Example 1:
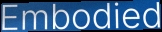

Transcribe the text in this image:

Embodied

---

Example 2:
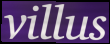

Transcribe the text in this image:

villus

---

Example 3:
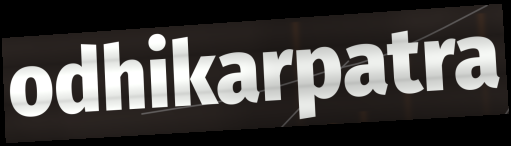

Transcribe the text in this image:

odhikarpatra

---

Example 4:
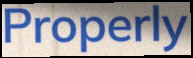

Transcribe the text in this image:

Properly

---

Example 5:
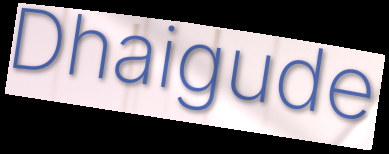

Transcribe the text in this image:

Dhaigude